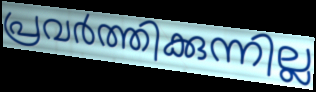
പ്രവർത്തിക്കുന്നില്ല